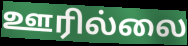
ஊரில்லை